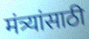
मंत्र्यांसाठी